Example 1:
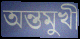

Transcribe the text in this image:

অন্তমুখী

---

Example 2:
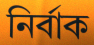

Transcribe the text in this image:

নিৰ্বাক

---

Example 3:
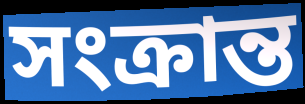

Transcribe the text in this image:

সংক্ৰান্ত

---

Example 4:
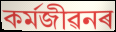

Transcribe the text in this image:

কৰ্মজীৱনৰ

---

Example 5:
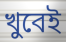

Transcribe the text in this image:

খুবেই